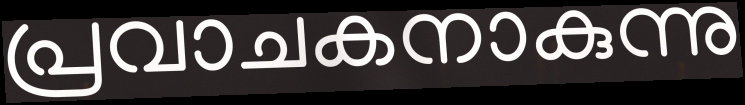
പ്രവാചകനാകുന്നു